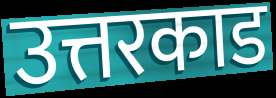
उत्तरकाड